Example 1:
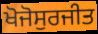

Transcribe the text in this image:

ਖੋਜੋਸੁਰਜੀਤ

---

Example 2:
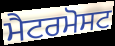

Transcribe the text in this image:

ਮੈਟਰਮੋਸਟ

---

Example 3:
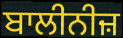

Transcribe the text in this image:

ਬਾਲੀਨੀਜ਼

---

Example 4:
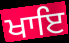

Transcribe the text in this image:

ਖਾਇ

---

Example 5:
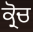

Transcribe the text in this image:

ਕ੍ਰੋਚ